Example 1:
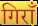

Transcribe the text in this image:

गिराँ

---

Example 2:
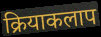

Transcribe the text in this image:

क्रियाकलाप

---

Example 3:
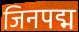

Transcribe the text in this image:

जिनपद्म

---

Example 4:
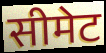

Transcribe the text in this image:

सीमेट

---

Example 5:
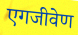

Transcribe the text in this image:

एगजीवेण